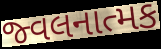
જ્વલનાત્મક